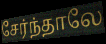
சேர்ந்தாலே